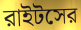
রাইটসের